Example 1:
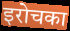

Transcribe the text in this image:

इरोचका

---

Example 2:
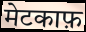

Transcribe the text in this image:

मेटकाफ़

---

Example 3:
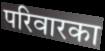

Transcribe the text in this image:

परिवारका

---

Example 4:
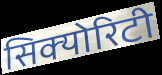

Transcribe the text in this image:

सिक्‍योरिटी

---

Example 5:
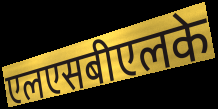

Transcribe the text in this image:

एलएसबीएलके